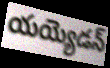
యయ్యెడన్